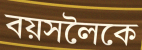
বয়সলৈকে